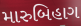
મારુબિહાગ